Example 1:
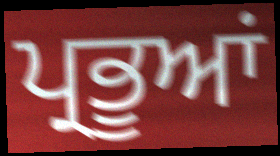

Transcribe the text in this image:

ਪ੍ਰਭੂਆਂ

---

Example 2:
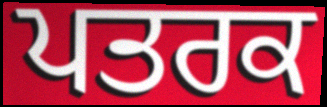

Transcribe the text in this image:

ਪਤਰਕ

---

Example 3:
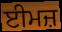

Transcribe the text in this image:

ਈਮਜ਼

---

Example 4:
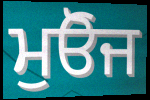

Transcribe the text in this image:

ਮੁਓੋਜ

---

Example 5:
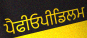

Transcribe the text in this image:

ਪੈਫੀਓਪੀਡਿਲਮ